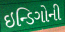
ઇન્ડિગોની